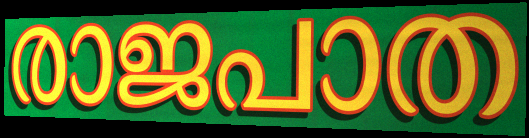
രാജപാത